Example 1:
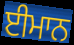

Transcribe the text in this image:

ਈਮਾਨ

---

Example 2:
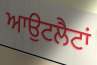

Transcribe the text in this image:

ਆਉਟਲੈਟਾਂ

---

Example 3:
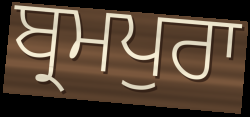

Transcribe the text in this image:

ਬ੍ਰਮਪੁਰਾ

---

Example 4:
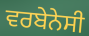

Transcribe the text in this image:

ਵਰਬੇਨੇਸੀ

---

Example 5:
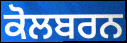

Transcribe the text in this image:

ਕੋਲਬਰਨ